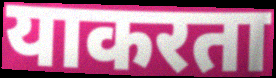
याकरता